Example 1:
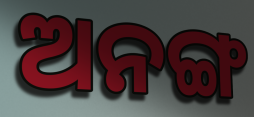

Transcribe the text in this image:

ଅନଙ୍ଗ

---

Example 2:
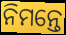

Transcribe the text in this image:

ନିମନ୍ତେ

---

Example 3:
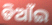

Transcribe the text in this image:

ଡିଆଁଇ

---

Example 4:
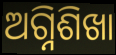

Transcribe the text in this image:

ଅଗ୍ନିଶିଖା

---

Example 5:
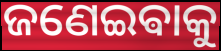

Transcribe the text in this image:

ଜଣେଇଵାକୁ